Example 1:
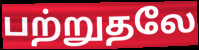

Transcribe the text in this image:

பற்றுதலே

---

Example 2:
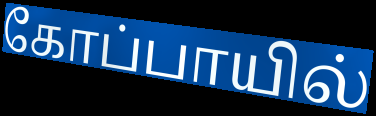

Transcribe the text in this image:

கோப்பாயில்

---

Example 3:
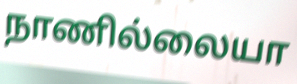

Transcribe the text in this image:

நாணில்லையா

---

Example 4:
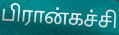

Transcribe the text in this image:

பிரான்கச்சி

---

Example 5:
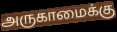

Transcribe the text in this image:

அருகாமைக்கு